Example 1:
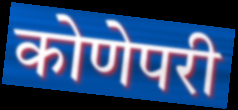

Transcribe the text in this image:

कोणेपरी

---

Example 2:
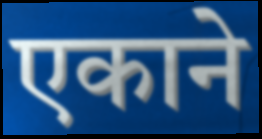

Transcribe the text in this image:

एकाने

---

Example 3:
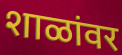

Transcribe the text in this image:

शाळांवर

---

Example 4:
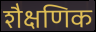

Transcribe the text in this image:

शैक्षणिक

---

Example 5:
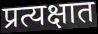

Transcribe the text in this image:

प्रत्यक्षात